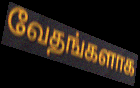
வேதங்களாக